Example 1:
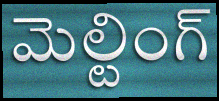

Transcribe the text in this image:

మెల్టింగ్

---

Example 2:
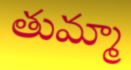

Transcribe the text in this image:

తుమ్మా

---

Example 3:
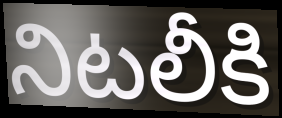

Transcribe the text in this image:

నిటలీకి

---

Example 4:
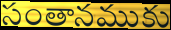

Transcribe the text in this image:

సంతానముకు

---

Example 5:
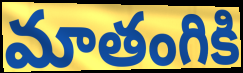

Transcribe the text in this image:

మాతంగికి